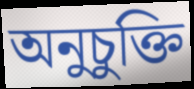
অনুচুক্তি